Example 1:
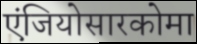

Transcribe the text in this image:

एंजियोसारकोमा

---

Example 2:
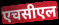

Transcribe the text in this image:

एचसीएल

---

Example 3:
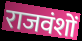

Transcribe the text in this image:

राजवंशों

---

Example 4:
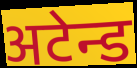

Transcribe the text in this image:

अटेन्ड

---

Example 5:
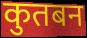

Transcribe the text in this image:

कुतबन